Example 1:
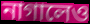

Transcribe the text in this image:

নাগালেও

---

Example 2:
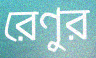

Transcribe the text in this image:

রেণুর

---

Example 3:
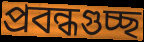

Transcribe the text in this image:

প্রবন্ধগুচ্ছ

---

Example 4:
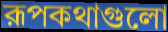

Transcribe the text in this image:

রূপকথাগুলো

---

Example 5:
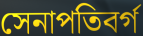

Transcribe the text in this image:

সেনাপতিবর্গ